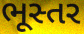
ભૂસ્તર